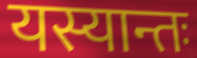
यस्यान्तः